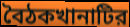
বৈঠকখানাটির